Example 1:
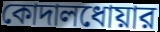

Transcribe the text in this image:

কোদালধোয়ার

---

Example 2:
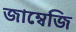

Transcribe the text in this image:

জাম্বেজি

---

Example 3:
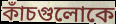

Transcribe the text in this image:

কাঁচগুলোকে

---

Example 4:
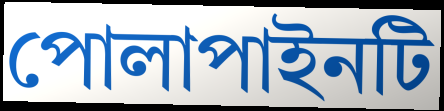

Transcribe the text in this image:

পোলাপাইনটি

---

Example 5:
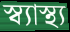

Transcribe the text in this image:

স্ব্যাস্থ্য